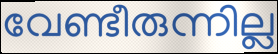
വേണ്ടീരുന്നില്ല